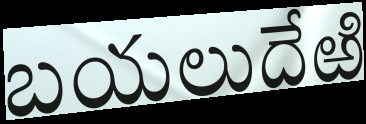
బయలుదేఱి